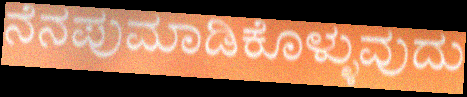
ನೆನಪುಮಾಡಿಕೊಳ್ಳುವುದು